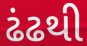
ઢંઢથી